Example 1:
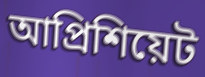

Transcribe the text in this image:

আপ্রিশিয়েট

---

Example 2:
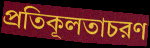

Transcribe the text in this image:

প্রতিকূলতাচরণ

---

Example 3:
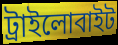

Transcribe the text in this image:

ট্রাইলোবাইট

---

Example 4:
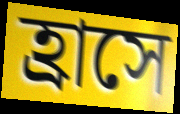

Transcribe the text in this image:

হ্রাসে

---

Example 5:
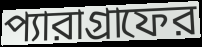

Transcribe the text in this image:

প্যারাগ্রাফের